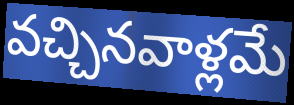
వచ్చినవాళ్లమే